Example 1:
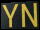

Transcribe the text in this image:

YN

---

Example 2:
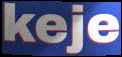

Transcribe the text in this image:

keje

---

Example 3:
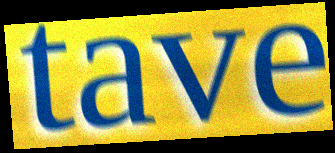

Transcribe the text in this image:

tave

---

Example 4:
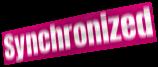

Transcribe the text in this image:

Synchronized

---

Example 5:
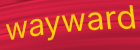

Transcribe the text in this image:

wayward